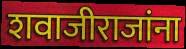
शवाजीराजांना